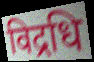
विद्रधि